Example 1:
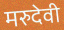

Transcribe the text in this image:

मरुदेवी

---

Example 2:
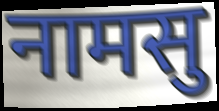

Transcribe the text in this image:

नामसु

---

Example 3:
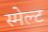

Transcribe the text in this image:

स्मेल्ट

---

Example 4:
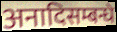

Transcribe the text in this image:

अनादिसम्बन्धे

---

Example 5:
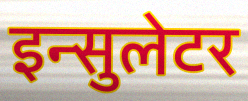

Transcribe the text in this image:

इन्सुलेटर